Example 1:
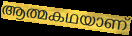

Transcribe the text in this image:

ആത്മകഥയാണ്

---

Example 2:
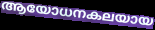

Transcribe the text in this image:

ആയോധനകലയായ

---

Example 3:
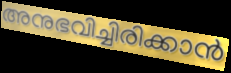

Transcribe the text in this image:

അനുഭവിച്ചിരിക്കാൻ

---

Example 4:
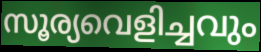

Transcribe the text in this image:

സൂര്യവെളിച്ചവും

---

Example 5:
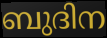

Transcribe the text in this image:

ബുദിന